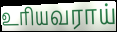
உரியவராய்